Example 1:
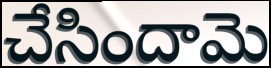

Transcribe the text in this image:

చేసిందామె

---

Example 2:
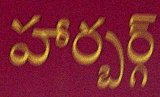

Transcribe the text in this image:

హార్బర్గ్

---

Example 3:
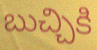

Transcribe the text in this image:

బుచ్చికి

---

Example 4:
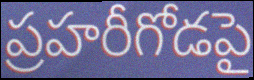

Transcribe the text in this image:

ప్రహరీగోడపై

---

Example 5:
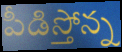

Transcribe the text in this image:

పీడిస్తోన్న